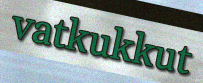
vatkukkut